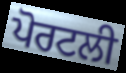
ਪੋਰਟਲੀ